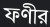
ফণীর